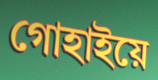
গোহাইয়ে